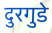
दुरगुडे